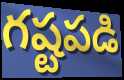
గష్టపడి